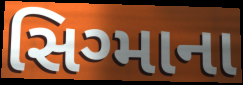
સિગ્માના